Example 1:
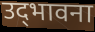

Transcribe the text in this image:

उद्भावना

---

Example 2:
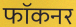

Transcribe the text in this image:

फॉकनर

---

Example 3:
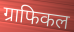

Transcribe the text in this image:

ग्राफिकल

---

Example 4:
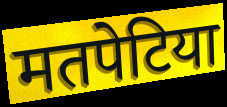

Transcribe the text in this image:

मतपेटिया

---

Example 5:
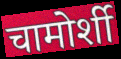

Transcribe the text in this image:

चामोर्शी